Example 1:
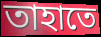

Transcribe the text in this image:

তাহাতে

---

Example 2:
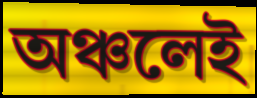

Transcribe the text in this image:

অঞ্চলেই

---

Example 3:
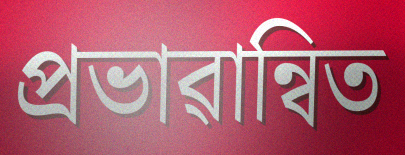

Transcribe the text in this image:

প্ৰভাৱান্বিত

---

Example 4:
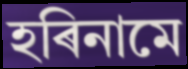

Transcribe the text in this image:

হৰিনামে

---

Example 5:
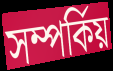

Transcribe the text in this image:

সম্পৰ্কিয়